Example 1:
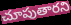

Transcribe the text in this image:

చూపుతారని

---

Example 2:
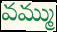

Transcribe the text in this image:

వమ్ము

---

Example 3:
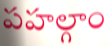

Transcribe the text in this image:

పహల్గాం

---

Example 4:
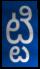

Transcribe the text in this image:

ట్టి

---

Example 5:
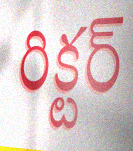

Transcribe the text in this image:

రిక్టర్